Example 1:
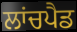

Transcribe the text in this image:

ਲਾਂਚਪੈਡ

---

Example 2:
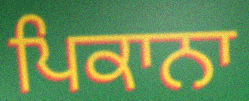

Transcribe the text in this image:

ਪਿਕਾਨਾ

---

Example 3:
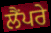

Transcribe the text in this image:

ਲੈਂਪਰੇ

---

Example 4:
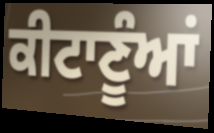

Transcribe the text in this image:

ਕੀਟਾਣੂੰਆਂ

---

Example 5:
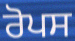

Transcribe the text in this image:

ਰੋਪਸ